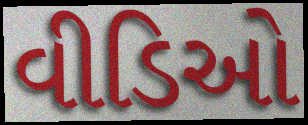
વીડિઓ